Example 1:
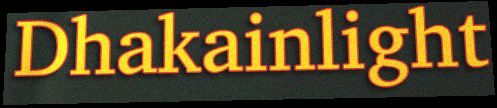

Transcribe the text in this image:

Dhakainlight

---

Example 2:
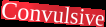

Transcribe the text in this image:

Convulsive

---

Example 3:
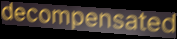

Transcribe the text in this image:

decompensated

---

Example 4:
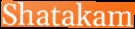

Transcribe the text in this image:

Shatakam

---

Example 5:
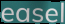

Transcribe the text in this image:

easel